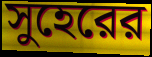
সুহেরের